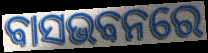
ବାସଭବନରେ